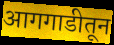
आगगाडीतून